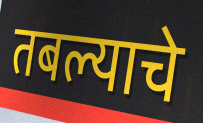
तबल्याचे